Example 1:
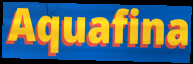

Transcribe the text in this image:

Aquafina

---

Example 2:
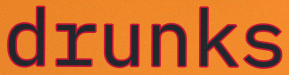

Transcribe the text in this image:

drunks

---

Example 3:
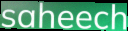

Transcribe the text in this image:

saheech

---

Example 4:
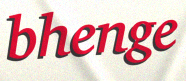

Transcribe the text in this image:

bhenge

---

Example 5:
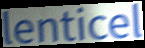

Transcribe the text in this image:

lenticel